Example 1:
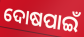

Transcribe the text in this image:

ଦୋଷପାଇଁ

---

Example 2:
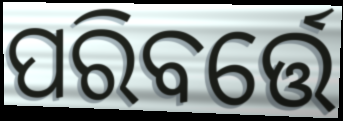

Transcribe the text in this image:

ପରିବର୍ତ୍ତେ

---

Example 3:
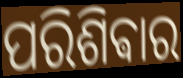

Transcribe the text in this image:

ପରିଶିଵାର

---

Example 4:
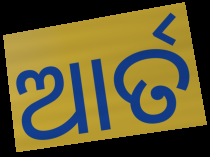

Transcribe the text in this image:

ଆର୍ତ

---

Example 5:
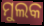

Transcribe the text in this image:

ମୁଲକ